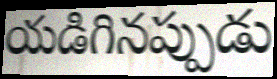
యడిగినప్పుడు